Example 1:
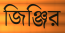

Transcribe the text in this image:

জিঞ্জির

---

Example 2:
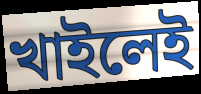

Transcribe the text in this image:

খাইলেই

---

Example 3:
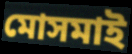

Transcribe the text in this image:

মোসমাই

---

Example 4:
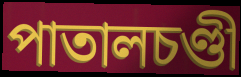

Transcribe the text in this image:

পাতালচণ্ডী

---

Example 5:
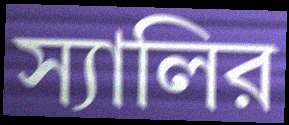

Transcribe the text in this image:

স্যালির